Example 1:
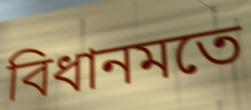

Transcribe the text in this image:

বিধানমতে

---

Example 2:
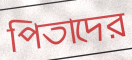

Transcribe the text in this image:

পিতাদের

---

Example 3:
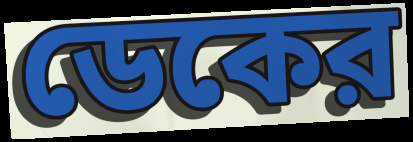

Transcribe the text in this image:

ডেকের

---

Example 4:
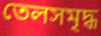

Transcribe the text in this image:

তেলসমৃদ্ধ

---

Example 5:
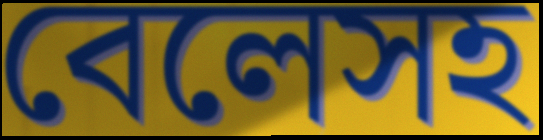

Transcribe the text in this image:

বেলেসহ